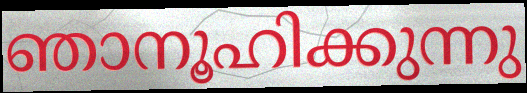
ഞാനൂഹിക്കുന്നു